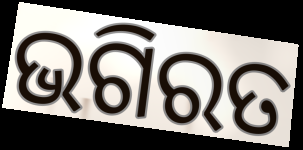
ଭଗିରତ